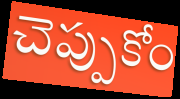
చెప్పుకోం